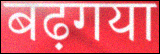
बढ़गया